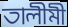
তালীমী